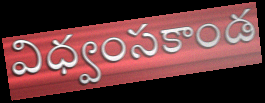
విధ్వంసకాండ